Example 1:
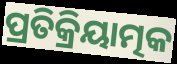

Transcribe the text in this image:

ପ୍ରତିକ୍ରିୟାତ୍ମକ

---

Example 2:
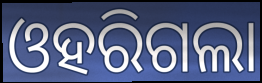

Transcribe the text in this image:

ଓହରିଗଲା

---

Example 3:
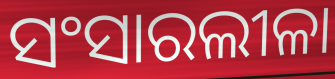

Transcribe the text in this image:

ସଂସାରଲୀଳା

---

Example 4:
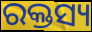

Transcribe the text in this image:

ରକ୍ତସ୍ୟ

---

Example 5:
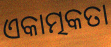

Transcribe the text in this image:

ଏକାତ୍ମକତା